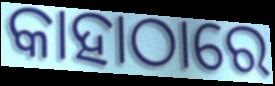
କାହାଠାରେ